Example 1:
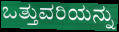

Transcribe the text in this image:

ಒತ್ತುವರಿಯನ್ನು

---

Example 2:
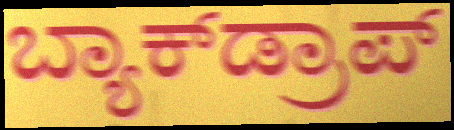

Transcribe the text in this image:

ಬ್ಯಾಕ್‌ಡ್ರಾಪ್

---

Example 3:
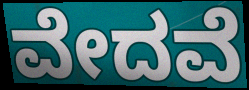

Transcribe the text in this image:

ವೇದವೆ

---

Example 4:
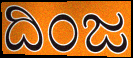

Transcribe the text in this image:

ದಿಂಜ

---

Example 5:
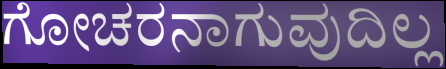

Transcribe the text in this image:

ಗೋಚರನಾಗುವುದಿಲ್ಲ